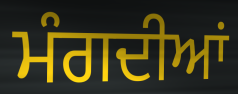
ਮੰਗਦੀਆਂ